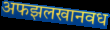
अफझलखानवध